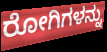
ರೋಗಿಗಳನ್ನು